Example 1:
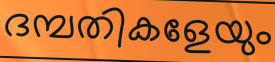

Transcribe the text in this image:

ദമ്പതികളേയും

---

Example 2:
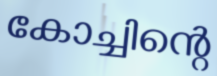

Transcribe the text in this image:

കോച്ചിന്റെ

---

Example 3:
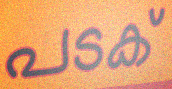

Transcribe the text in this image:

പടക്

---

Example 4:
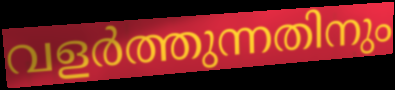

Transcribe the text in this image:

വളർത്തുന്നതിനും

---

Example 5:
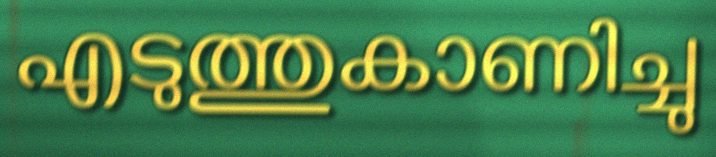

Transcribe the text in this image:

എടുത്തുകാണിച്ചു